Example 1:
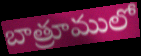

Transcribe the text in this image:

బాత్రూములో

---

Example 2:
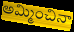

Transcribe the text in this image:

అమ్మించినా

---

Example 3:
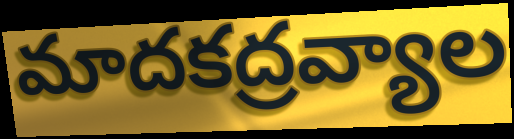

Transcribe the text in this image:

మాదకద్రవ్యాల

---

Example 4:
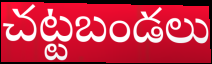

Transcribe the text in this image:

చట్టబండలు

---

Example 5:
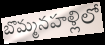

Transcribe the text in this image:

బొమ్మనహళ్లిలో